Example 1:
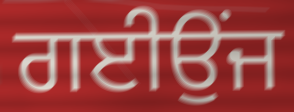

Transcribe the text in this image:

ਗਈਉਂਜ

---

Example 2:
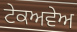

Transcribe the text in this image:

ਟੇਕਅਵੇਅ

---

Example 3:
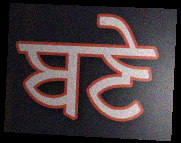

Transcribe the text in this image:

ਬਣੇ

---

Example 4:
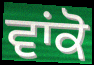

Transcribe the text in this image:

ਵਾਂਕੋ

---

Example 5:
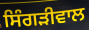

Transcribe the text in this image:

ਸਿੰਗੜੀਵਾਲ